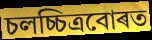
চলচ্চিত্ৰবোৰত